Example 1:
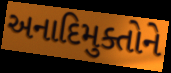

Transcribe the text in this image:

અનાદિમુક્તોને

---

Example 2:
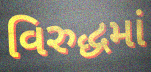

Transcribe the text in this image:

વિરુદ્ધમાં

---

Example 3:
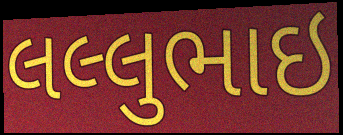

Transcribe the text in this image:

લલ્લુભાઇ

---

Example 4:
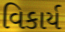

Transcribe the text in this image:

વિકાર્ય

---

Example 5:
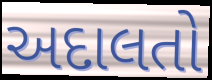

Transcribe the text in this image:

અદાલતો